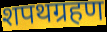
शपथग्रहण